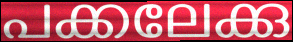
പക്കലേക്കു